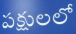
పక్షులలో